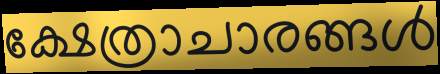
ക്ഷേത്രാചാരങ്ങൾ